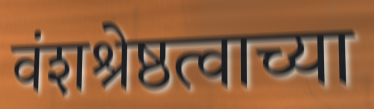
वंशश्रेष्ठत्वाच्या